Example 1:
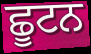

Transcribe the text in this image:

ਛੂਟਨ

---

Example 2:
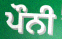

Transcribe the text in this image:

ਪੌਨੀ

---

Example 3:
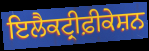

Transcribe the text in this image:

ਇਲੈਕਟ੍ਰੀਫ਼ੀਕੇਸ਼ਨ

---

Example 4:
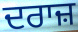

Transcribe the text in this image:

ਦਰਾਜ਼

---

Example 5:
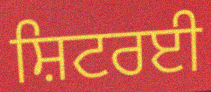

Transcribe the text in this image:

ਸ਼ਿਟਰਈ